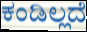
ಕಂಡಿಲ್ಲದೆ